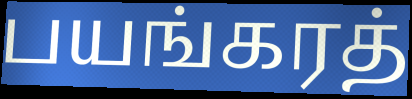
பயங்கரத்